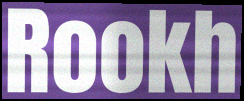
Rookh